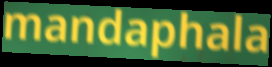
mandaphala